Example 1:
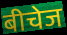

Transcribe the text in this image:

बीचेज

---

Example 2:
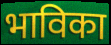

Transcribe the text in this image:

भाविका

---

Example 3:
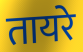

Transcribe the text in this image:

तायरे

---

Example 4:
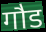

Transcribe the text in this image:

गौड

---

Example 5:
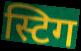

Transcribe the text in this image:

स्टिग